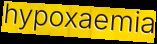
hypoxaemia